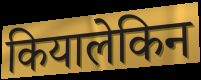
कियालेकिन